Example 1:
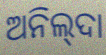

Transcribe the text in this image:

ଅନିଲ୍‌ଦା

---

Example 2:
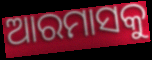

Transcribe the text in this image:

ଆରମାସକୁ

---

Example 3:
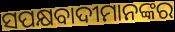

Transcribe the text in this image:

ସପକ୍ଷବାଦୀମାନଙ୍କର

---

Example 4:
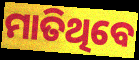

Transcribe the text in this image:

ମାତିଥିବେ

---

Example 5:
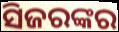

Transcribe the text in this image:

ସିଜରଙ୍କର